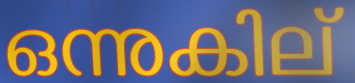
ഒന്നുകില്